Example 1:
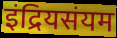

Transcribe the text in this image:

इंद्रियसंयम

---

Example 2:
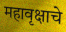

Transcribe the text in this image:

महावृक्षाचे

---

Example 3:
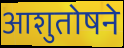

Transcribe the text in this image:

आशुतोषने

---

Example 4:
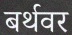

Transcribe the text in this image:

बर्थवर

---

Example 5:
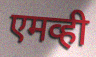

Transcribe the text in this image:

एमव्ही